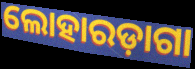
ଲୋହାରଡ଼ାଗା